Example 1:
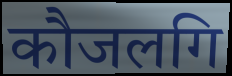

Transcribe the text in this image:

कौजलगि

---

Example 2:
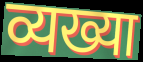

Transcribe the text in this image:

व्यख्या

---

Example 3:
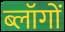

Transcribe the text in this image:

ब्‍लॉगों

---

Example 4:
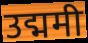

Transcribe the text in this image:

उद्ममी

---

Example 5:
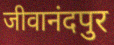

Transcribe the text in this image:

जीवानंदपुर